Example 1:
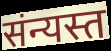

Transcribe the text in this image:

संन्यस्त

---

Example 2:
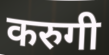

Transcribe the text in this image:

करुगी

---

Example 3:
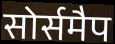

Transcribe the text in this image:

सोर्समैप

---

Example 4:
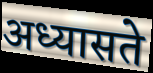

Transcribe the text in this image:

अध्यासते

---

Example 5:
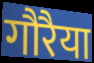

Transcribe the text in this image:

गौरैया